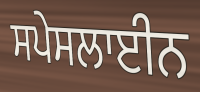
ਸਪੇਸਲਾਈਨ